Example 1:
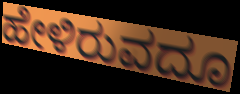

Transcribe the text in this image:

ಹೇಳಿರುವದೂ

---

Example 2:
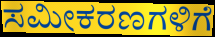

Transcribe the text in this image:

ಸಮೀಕರಣಗಳಿಗೆ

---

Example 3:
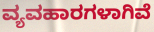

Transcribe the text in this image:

ವ್ಯವಹಾರಗಳಾಗಿವೆ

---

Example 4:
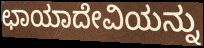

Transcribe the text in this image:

ಛಾಯಾದೇವಿಯನ್ನು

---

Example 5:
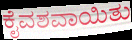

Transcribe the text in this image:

ಕೈವಶವಾಯಿತು